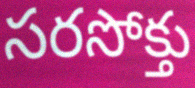
సరసోక్తు